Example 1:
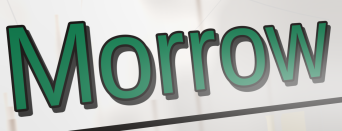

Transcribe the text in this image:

Morrow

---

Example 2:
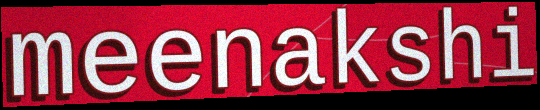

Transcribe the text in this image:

meenakshi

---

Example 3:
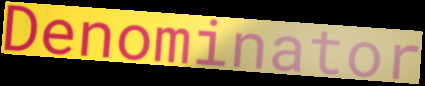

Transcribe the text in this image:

Denominator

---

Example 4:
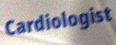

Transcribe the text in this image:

Cardiologist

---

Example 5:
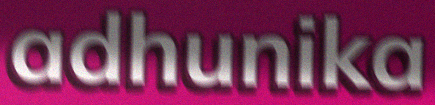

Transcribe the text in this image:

adhunika